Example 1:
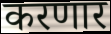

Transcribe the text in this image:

करणार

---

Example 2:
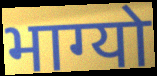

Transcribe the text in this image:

भाग्यो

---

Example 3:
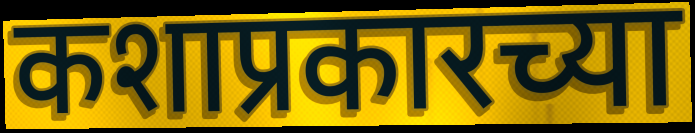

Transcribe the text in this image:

कशाप्रकारच्या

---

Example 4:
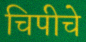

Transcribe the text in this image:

चिपीचे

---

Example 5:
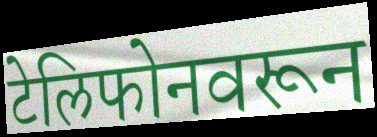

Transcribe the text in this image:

टेलिफोनवरून